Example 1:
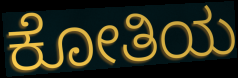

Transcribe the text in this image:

ಕೋತಿಯ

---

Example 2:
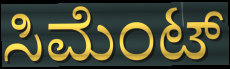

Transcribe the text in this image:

ಸಿಮೆಂಟ್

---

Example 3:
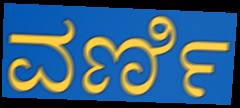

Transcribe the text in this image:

ವರ್ಣಿ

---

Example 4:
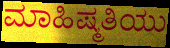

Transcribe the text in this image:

ಮಾಹಿಷ್ಮತಿಯು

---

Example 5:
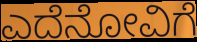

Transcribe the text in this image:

ಎದೆನೋವಿಗೆ